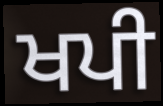
ਖਪੀ